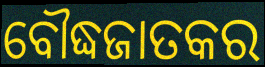
ବୌଦ୍ଧଜାତକର